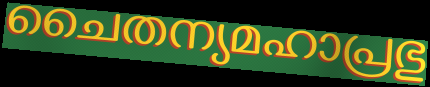
ചൈതന്യമഹാപ്രഭു